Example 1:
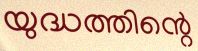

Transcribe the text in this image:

യുദ്ധത്തിന്റെ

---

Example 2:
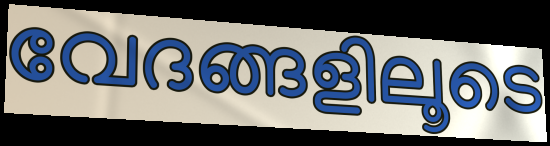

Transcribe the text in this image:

വേദങ്ങളിലൂടെ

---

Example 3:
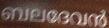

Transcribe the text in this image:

ബലദേവൻ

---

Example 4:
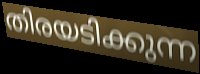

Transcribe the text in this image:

തിരയടിക്കുന്ന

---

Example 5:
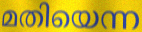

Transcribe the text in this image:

മതിയെന്ന